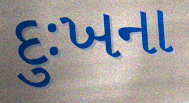
દુઃખના